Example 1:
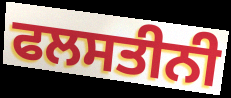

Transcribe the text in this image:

ਫਲਸਤੀਨੀ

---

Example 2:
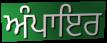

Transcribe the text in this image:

ਅੰਪਾਇਰ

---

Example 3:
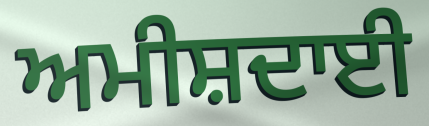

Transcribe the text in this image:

ਅਮੀਸ਼ਦਾਈ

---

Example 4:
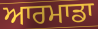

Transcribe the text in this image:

ਆਰਮਾਡਾ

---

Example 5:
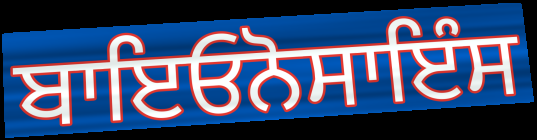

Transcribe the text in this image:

ਬਾਇਓਨੋਸਾਇੰਸ